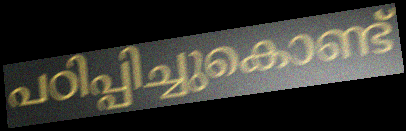
പഠിപ്പിച്ചുകൊണ്ട്